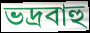
ভদ্রবাহু